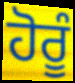
ਹੋਰੂੰ